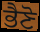
ਭੈਣੋ